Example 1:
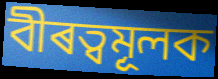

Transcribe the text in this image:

বীৰত্বমূলক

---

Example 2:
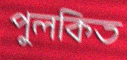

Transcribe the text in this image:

পুলকিত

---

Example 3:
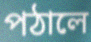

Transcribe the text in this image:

পঠালে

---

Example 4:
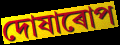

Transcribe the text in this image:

দোষাৰোপ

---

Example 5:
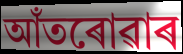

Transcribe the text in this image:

আঁতৰোৱাৰ